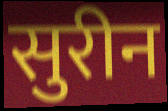
सुरीन